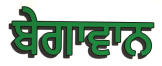
ਬੇਗਾਵਾਨ